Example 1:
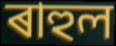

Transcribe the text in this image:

ৰাহুল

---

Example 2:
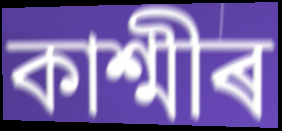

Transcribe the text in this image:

কাশ্মীৰ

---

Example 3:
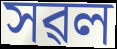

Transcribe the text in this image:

সৱল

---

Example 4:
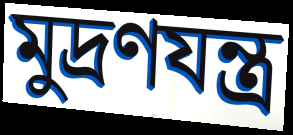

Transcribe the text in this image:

মুদ্ৰণযন্ত্ৰ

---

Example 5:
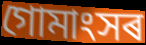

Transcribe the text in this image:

গোমাংসৰ